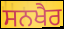
ਸਨਖੈਰ